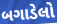
બગાડેલો